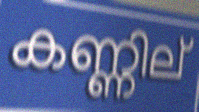
കണ്ണില്